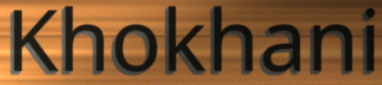
Khokhani